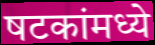
षटकांमध्ये